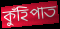
কুঁহিপাত